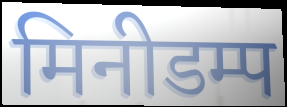
मिनीडम्प